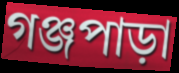
গঞ্জপাড়া